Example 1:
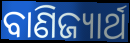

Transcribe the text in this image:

ବାଣିଜ୍ୟାର୍ଥ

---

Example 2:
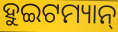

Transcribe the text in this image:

ହୁଇଟମ୍ୟାନ୍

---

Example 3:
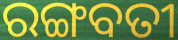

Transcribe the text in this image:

ରଙ୍ଗବତୀ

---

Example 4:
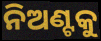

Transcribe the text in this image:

ନିଅଣ୍ଟକୁ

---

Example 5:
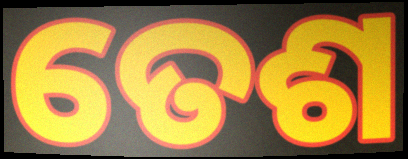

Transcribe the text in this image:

ତେଶ